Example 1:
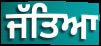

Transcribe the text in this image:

ਜੱਤਿਆ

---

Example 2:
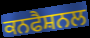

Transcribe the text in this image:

ਕਨਫੈਸ਼ਨਲ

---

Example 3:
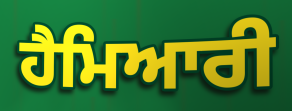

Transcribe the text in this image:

ਹੈਮਿਆਰੀ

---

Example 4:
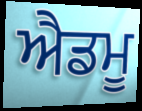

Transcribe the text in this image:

ਐਡਮੂ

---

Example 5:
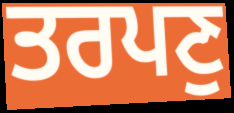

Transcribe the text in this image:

ਤਰਪਣੁ